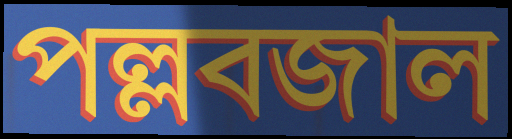
পল্লবজাল